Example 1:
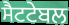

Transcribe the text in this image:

ਸੈਟਟੇਬਲ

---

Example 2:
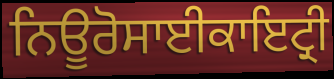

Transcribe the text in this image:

ਨਿਊਰੋਸਾਈਕਾਇਟ੍ਰੀ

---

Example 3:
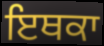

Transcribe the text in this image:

ਇਥਕਾ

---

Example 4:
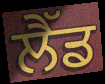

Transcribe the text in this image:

ਲੈੱਡ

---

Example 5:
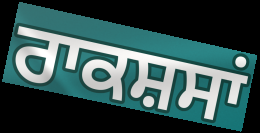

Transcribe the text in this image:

ਰਾਕਸ਼ਸਾਂ